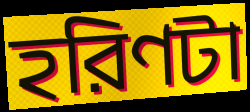
হরিণটা